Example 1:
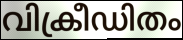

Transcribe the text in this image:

വിക്രീഡിതം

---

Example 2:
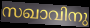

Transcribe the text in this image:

സഖാവിനു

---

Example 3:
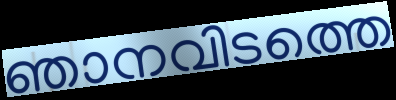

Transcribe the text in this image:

ഞാനവിടത്തെ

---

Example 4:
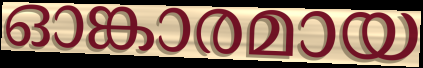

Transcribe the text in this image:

ഓങ്കാരമായ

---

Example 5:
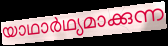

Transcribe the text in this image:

യാഥാർഥ്യമാക്കുന്ന